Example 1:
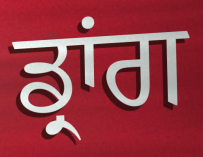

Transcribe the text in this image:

ਡ੍ਰਾਂਗ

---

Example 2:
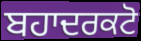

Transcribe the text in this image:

ਬਹਾਦਰਕਟੋ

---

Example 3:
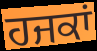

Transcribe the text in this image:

ਹਜਕਾਂ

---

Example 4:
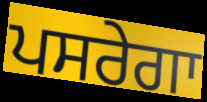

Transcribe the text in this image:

ਪਸਰੇਗਾ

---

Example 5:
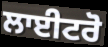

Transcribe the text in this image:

ਲਾਈਟਰੋ